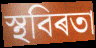
স্থবিৰতা